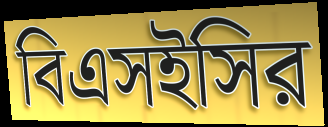
বিএসইসির